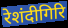
रेशंदीगिरि